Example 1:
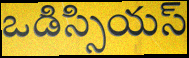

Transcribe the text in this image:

ఒడిస్సియస్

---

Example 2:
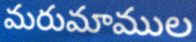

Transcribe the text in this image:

మరుమాముల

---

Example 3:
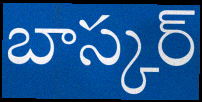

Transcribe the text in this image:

బాస్కర్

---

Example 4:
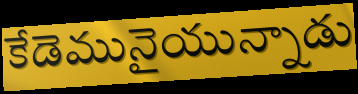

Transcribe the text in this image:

కేడెమునైయున్నాడు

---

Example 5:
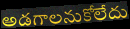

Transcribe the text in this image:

అడగాలనుకోలేదు